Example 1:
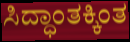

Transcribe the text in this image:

ಸಿದ್ಧಾಂತಕ್ಕಿಂತ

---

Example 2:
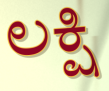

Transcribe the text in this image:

ಲಕ್ಷಿ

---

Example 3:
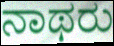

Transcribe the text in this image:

ನಾಥರು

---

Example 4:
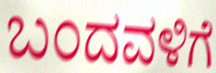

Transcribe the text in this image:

ಬಂದವಳಿಗೆ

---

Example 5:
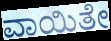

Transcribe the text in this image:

ವಾಯಿತೇ